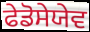
ਫੇਡੋਸੇਯੇਵ